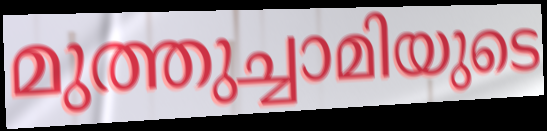
മുത്തുച്ചാമിയുടെ